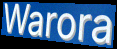
Warora